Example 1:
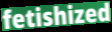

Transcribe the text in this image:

fetishized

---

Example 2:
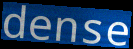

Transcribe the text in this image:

dense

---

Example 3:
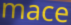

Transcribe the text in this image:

mace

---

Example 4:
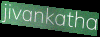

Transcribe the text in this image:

jivankatha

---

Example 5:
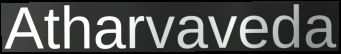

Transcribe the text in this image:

Atharvaveda